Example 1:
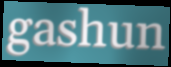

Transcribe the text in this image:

gashun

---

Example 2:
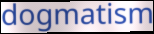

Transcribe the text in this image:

dogmatism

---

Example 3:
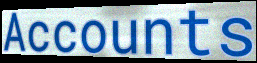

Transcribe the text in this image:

Accounts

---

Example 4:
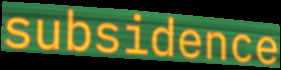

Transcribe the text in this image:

subsidence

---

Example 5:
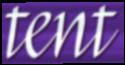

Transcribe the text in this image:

tent